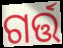
ଗର୍ତ୍ତ